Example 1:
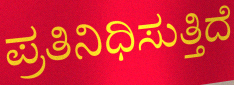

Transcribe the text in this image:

ಪ್ರತಿನಿಧಿಸುತ್ತಿದೆ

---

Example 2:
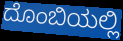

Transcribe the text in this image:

ದೊಂಬಿಯಲ್ಲಿ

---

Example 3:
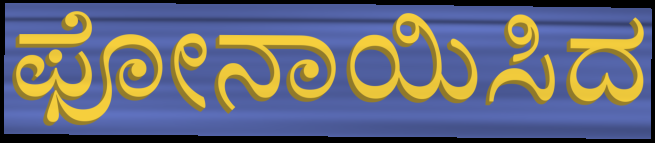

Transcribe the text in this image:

ಫೋನಾಯಿಸಿದ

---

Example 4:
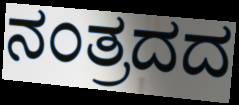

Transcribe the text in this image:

ನಂತ್ರದದ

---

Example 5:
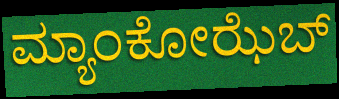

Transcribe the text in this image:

ಮ್ಯಾಂಕೋಝೆಬ್